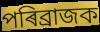
পৰিব্ৰাজক